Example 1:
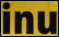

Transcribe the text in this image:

inu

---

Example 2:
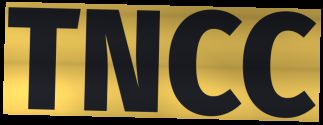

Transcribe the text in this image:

TNCC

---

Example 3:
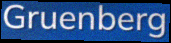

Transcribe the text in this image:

Gruenberg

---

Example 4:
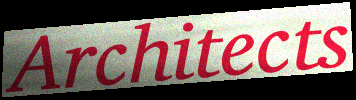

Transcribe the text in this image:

Architects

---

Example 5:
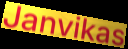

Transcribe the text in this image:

Janvikas